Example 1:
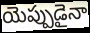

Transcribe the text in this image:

యెప్పుడైనా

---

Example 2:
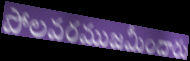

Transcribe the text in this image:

పోలవరముజమీందారు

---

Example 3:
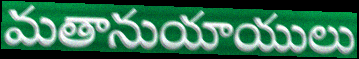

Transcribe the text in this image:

మతానుయాయులు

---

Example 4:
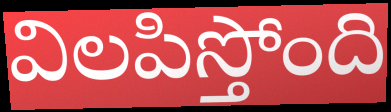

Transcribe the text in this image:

విలపిస్తోంది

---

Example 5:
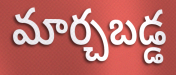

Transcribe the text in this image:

మార్చబడ్డ